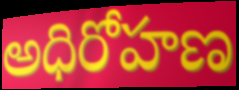
అధిరోహణ